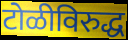
टोळीविरुद्ध